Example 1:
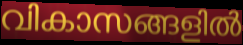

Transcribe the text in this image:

വികാസങ്ങളിൽ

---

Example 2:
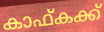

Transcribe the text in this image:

കാഫ്കക്ക്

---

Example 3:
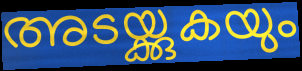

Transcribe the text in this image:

അടയ്ക്കുകയും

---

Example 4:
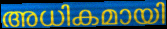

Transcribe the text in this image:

അധികമായി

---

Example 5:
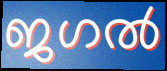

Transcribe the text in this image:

ജഗൽ